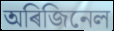
অৰিজিনেল